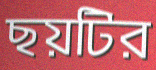
ছয়টির